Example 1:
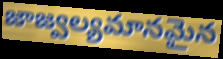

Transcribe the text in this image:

జాజ్వల్యమానమైన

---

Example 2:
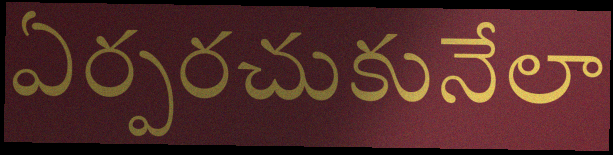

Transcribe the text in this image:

ఏర్పరచుకునేలా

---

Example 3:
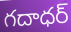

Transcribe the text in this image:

గదాధర్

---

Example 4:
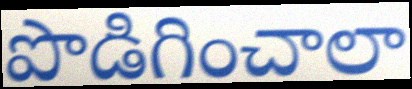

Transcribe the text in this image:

పొడిగించాలా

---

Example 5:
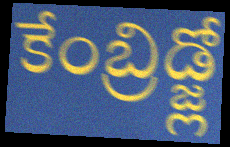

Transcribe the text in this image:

కేంబ్రిడ్జ్లో